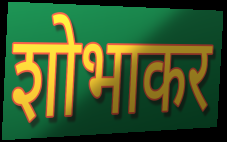
शोभाकर